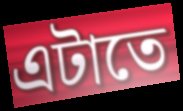
এটাতে